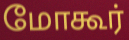
மோகூர்